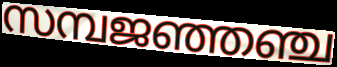
സമ്പജഞ്ഞഞ്ച